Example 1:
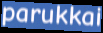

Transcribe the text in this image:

parukkai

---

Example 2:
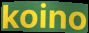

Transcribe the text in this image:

koino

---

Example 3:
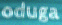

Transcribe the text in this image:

oduga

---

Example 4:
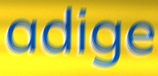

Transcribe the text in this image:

adige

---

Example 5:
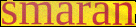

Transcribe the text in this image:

smaran